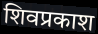
शिवप्रकाश